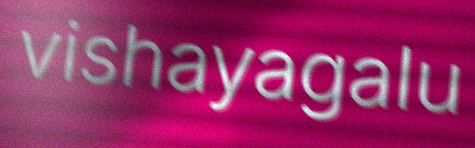
vishayagalu